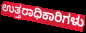
ಉತ್ತರಾಧಿಕಾರಿಗಳು